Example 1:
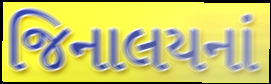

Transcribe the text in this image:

જિનાલયનાં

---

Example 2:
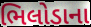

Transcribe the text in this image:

ભિલોડાના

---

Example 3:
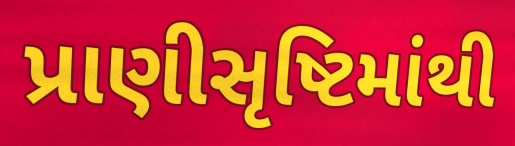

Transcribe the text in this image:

પ્રાણીસૃષ્ટિમાંથી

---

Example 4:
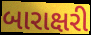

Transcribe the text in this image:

બારાક્ષરી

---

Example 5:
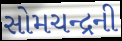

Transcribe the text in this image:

સોમચન્દ્રની